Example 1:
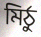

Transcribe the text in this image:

মিঠু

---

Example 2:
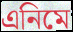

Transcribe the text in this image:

এনিমে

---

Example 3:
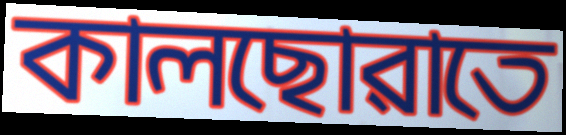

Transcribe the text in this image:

কালছোৱাতে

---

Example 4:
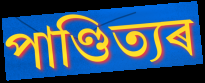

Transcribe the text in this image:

পাণ্ডিত্যৰ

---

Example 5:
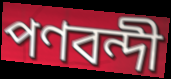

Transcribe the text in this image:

পণবন্দী